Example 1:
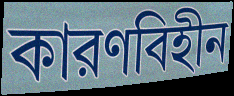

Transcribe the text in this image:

কারণবিহীন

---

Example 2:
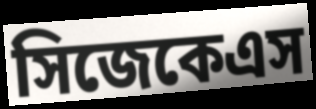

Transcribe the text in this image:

সিজেকেএস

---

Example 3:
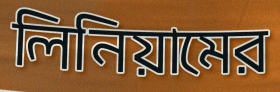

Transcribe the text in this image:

লিনিয়ামের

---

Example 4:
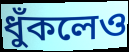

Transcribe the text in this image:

ধুঁকলেও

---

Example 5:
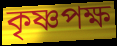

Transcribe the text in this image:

কৃষ্ণপক্ষ